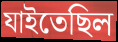
যাইতেছিল